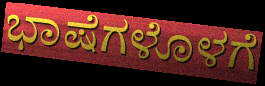
ಭಾಷೆಗಳೊಳಗೆ